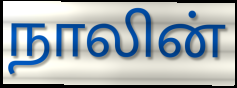
நாலின்